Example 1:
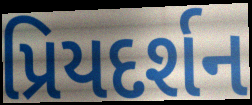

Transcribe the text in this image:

પ્રિયદર્શન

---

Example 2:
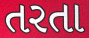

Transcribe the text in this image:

તરતા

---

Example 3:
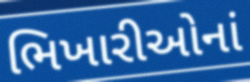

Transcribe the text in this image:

ભિખારીઓનાં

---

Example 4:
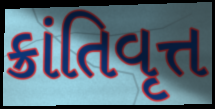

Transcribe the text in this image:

ક્રાંતિવૃત્ત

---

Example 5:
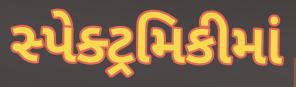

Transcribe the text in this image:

સ્પેક્ટ્રમિકીમાં